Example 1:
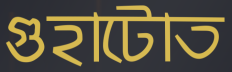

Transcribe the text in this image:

গুহাটোত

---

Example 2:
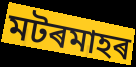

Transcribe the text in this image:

মটৰমাহৰ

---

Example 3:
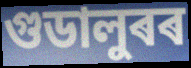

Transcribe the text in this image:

গুডালুৰৰ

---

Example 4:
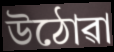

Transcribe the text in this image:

উঠোৱা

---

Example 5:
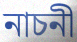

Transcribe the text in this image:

নাচনী